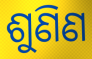
ଶୁଣିଣ